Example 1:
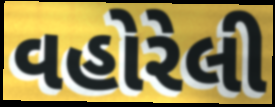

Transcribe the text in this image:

વહોરેલી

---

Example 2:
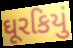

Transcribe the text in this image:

ઘૂરકિયું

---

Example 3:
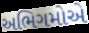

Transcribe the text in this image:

અભિગમોએ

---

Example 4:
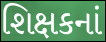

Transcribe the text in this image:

શિક્ષકનાં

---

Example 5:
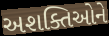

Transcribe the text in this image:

અશક્તિઓને